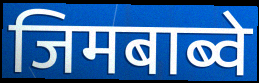
जिमबाब्वे